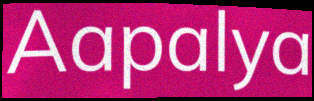
Aapalya